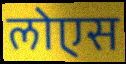
लोएस